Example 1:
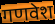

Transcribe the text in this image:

गणवेश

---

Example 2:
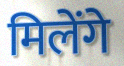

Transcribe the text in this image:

मिलेंगे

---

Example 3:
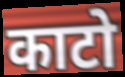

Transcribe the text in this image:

काटो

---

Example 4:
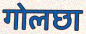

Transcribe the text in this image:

गोलछा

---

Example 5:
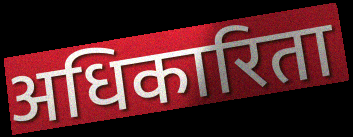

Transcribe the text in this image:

अधिकारिता